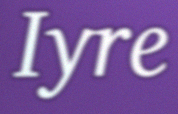
Iyre